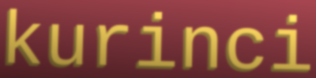
kurinci